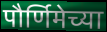
पौर्णिमेच्या